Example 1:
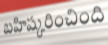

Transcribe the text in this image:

బహిష్కరించింది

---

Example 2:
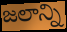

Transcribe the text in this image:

జలాన్ని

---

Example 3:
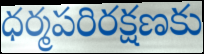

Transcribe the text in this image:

ధర్మపరిరక్షణకు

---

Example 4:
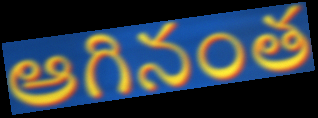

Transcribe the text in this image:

ఆగినంత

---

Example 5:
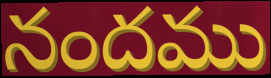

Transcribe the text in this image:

నందము